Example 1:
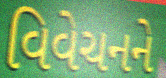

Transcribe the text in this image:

વિવેચનને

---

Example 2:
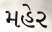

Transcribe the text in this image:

મહેર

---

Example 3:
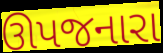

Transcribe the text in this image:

ઊપજનારા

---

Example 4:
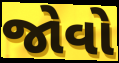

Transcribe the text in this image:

જોવો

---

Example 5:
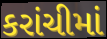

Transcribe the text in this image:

કરાંચીમાં